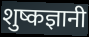
शुष्कज्ञानी